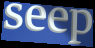
seep